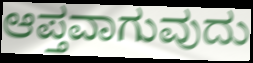
ಆಪ್ತವಾಗುವುದು